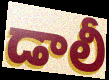
డాలీ